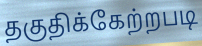
தகுதிக்கேற்றபடி